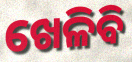
ଖେଳିବି